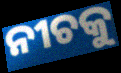
ନୀଚକୁ